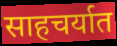
साहचर्यात